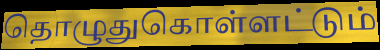
தொழுதுகொள்ளட்டும்